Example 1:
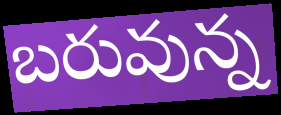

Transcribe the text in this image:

బరువున్న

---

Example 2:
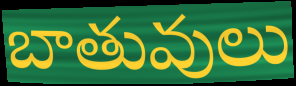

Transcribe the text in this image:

బాతువులు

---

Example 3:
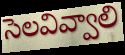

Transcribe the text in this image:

సెలవివ్వాలి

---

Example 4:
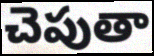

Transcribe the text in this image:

చెపుతా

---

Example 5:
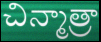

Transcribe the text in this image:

చిన్మాత్రా